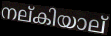
നല്കിയാല്